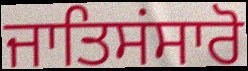
ਜਾਤਿਸਂਸਾਰੋ